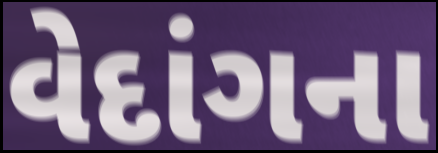
વેદાંગના